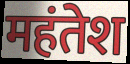
महंतेश